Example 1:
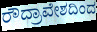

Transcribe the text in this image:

ರೌದ್ರಾವೇಶದಿಂದ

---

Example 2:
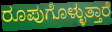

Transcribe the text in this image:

ರೂಪುಗೊಳ್ಳುತ್ತಾರೆ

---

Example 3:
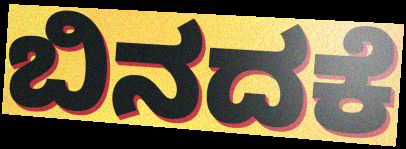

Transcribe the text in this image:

ಬಿನದಕೆ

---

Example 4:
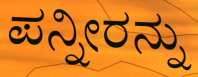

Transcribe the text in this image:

ಪನ್ನೀರನ್ನು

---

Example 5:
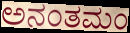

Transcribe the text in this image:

ಅನಂತಮಂ